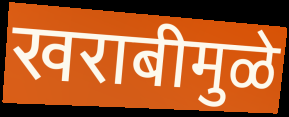
खराबीमुळे